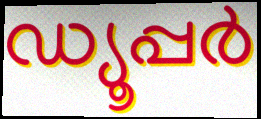
ഡ്യൂപ്പർ